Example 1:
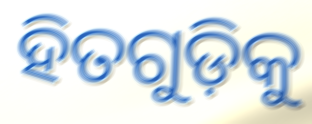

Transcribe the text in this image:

ହିତଗୁଡ଼ିକୁ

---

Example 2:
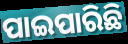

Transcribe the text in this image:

ପାଇପାରିଛି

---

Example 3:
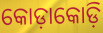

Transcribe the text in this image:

କୋଡ଼ାକୋଡ଼ି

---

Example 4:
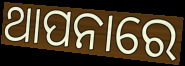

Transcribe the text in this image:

ଥାପନାରେ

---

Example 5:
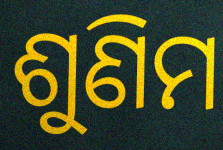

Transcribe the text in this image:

ଶୁଣିମ